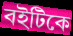
বইটিকে